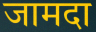
जामदा